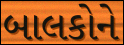
બાલકોને